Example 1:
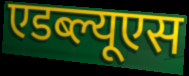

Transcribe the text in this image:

एडब्ल्यूएस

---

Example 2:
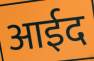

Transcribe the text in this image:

आईद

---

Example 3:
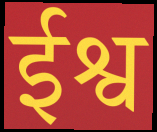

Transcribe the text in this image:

ईश्व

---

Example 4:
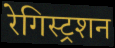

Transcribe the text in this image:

रेगिस्ट्रशन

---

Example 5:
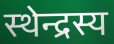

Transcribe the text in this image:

स्थेन्द्रस्य